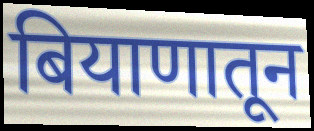
बियाणातून